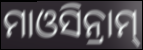
ମାଓସିନ୍ରାମ୍